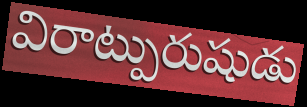
విరాట్పురుషుడు